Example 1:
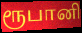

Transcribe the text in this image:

ரூபானி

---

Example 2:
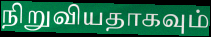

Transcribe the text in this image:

நிறுவியதாகவும்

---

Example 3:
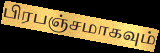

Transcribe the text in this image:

பிரபஞ்சமாகவும்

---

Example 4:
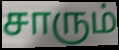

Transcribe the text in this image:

சாரும்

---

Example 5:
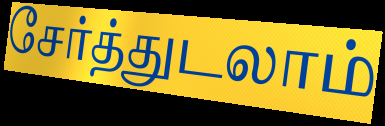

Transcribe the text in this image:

சேர்த்துடலாம்